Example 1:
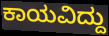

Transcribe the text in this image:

ಕಾಯವಿದ್ದು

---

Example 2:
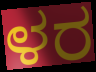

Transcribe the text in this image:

ಳರ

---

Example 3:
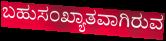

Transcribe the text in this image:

ಬಹುಸಂಖ್ಯಾತವಾಗಿರುವ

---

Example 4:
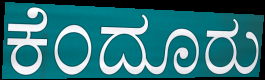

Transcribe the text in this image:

ಕೆಂದೂರು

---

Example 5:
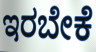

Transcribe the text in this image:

ಇರಬೇಕೆ